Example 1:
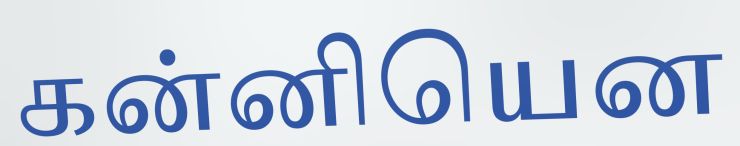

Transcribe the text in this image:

கன்னியென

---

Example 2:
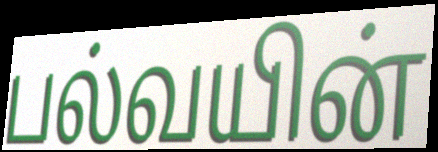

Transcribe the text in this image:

பல்வயின்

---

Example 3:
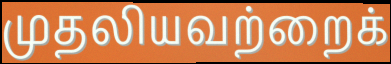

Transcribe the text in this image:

முதலியவற்றைக்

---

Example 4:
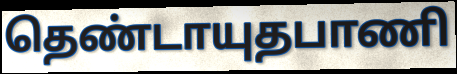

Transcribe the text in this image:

தெண்டாயுதபாணி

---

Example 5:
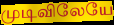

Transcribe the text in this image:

முடிவிலேயே